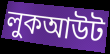
লুকআউট